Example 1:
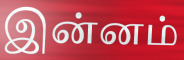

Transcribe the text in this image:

இன்னம்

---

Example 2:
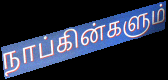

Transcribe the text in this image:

நாப்கின்களும்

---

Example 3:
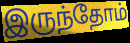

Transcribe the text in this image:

இருந்தோம்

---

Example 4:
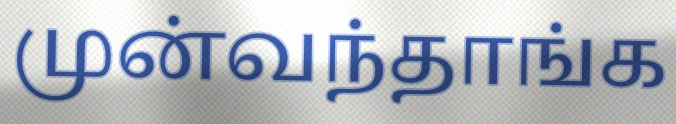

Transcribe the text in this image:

முன்வந்தாங்க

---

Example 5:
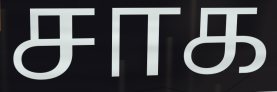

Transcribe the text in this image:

சாக